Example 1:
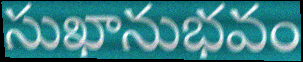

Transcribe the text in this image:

సుఖానుభవం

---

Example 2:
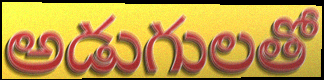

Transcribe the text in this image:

అడుగులతో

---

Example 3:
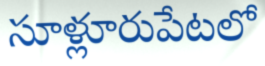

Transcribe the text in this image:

సూళ్లూరుపేటలో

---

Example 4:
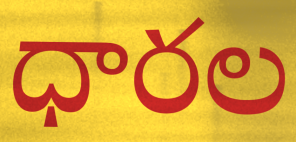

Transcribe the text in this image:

ధారల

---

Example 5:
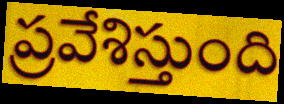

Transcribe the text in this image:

ప్రవేశిస్తుంది